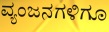
ವ್ಯಂಜನಗಳಿಗೂ